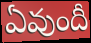
ఏవుందీ